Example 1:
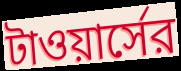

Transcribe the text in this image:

টাওয়ার্সের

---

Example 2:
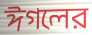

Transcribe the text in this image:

ঈগলের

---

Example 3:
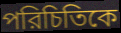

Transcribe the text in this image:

পরিচিতিকে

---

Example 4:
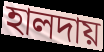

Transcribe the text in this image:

হালদায়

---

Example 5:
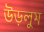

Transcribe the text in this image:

উড়লুম